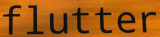
flutter